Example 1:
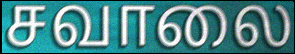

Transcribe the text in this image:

சவாலை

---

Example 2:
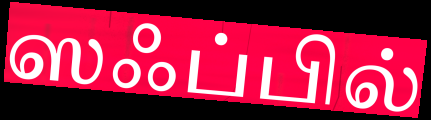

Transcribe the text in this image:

ஸஃப்பில்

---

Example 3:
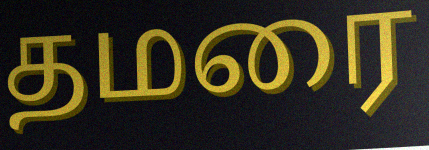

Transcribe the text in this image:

தமரை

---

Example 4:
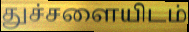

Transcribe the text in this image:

துச்சளையிடம்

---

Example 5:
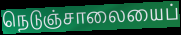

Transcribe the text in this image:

நெடுஞ்சாலையைப்